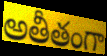
అతీతంగా